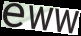
eww